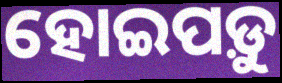
ହୋଇପଡ଼ୁ